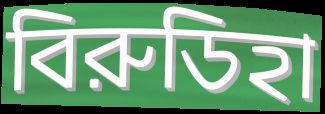
বিরুডিহা